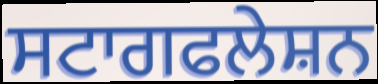
ਸਟਾਗਫਲੇਸ਼ਨ